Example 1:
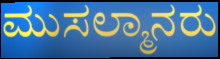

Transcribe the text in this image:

ಮುಸಲ್ಮಾನರು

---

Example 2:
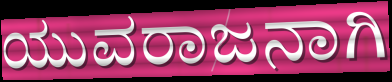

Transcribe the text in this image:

ಯುವರಾಜನಾಗಿ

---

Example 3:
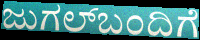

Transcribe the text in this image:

ಜುಗಲ್‌ಬಂದಿಗೆ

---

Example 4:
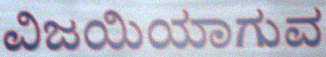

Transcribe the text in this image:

ವಿಜಯಿಯಾಗುವ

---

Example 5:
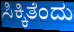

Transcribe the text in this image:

ಸಿಕ್ಕಿತೆಂದು